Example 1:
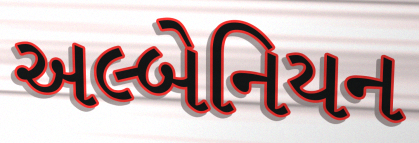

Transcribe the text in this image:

અલ્બેનિયન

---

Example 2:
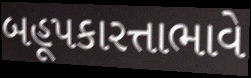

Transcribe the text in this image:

બહૂપકારત્તાભાવે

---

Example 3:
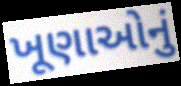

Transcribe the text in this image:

ખૂણાઓનું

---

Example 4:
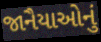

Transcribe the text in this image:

જાનૈયાઓનું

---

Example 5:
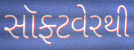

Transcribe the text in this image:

સૉફ્ટવેરથી